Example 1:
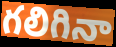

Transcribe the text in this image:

గలిగినా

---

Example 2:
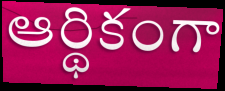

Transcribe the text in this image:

ఆర్థికంగా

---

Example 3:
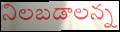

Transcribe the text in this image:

నిలబడాలన్న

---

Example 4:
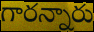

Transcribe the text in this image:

గారన్నారు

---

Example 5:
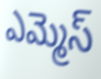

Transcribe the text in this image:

ఎమ్మెస్